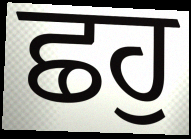
ਛਹੁ